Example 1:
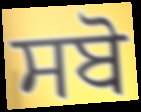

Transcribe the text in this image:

ਸਬੋ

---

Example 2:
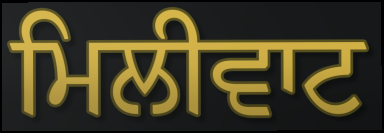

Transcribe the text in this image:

ਮਿਲੀਵਾਟ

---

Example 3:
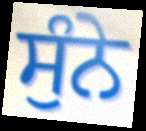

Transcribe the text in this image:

ਸੁੰਨੇ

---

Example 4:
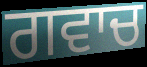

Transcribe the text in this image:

ਗਵਾਚ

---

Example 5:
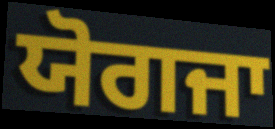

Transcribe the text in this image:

ਯੋਗਜਾ